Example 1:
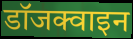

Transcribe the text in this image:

डॉजक्वाइन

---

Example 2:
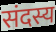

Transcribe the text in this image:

संदस्य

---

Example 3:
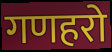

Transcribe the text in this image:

गणहरो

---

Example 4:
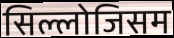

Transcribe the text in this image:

सिल्लोजिसम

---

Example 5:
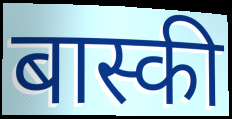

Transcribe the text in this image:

बास्की